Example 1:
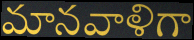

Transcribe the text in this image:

మానవాళిగా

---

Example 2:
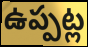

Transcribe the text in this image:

ఉప్పట్ల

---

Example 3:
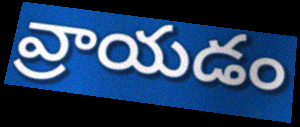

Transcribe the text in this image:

వ్రాయడం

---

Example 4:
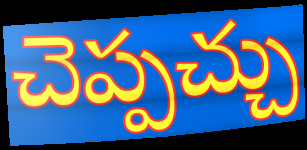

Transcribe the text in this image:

చెప్పచ్చు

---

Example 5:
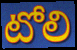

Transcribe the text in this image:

టోలి